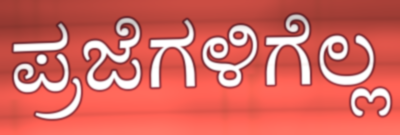
ಪ್ರಜೆಗಳಿಗೆಲ್ಲ